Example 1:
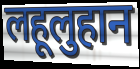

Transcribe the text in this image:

लहूलुहान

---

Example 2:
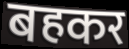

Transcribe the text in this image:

बहकर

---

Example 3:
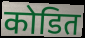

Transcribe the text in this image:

कोडित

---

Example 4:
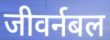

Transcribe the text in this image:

जीवर्नबल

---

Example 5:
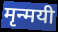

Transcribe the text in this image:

मृन्मयी